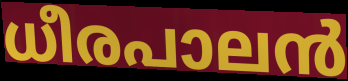
ധീരപാലൻ